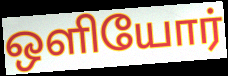
ஒளியோர்